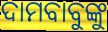
ଦାମବାବୁଙ୍କୁ